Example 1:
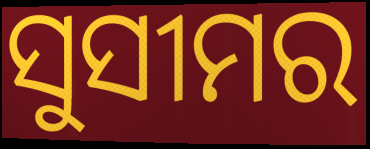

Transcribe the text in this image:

ସୁସୀମର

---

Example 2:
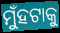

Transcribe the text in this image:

ମୁଁହଟାକୁ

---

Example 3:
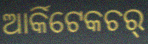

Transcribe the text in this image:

ଆର୍କିଟେକଚର୍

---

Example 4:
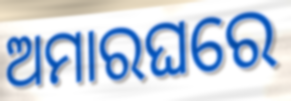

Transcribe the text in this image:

ଅମାରଘରେ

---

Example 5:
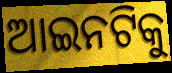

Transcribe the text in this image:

ଆଇନଟିକୁ